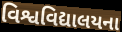
વિશ્વવિદ્યાલયના